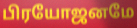
பிரயோஜனமே